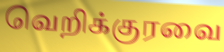
வெறிக்குரவை